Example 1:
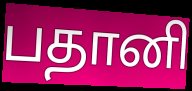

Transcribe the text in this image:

பதானி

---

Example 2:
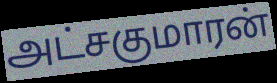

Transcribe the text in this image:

அட்சகுமாரன்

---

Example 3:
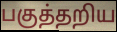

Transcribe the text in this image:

பகுத்தறிய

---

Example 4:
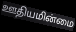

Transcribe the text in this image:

ஊதியமின்மை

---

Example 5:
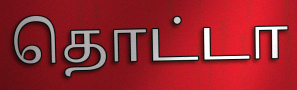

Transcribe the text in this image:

தொட்டா